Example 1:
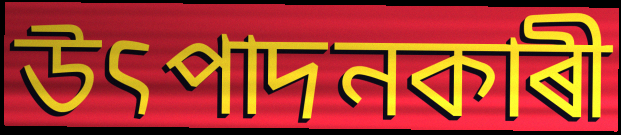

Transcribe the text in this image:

উৎপাদনকাৰী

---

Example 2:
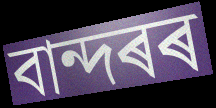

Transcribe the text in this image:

বান্দৰৰ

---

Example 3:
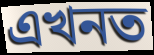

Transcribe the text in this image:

এখনত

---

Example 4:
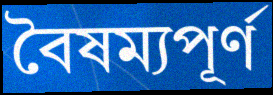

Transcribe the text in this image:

বৈষম্যপূৰ্ণ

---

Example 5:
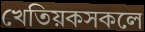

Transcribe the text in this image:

খেতিয়কসকলে